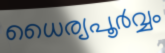
ധൈര്യപൂർവ്വം